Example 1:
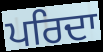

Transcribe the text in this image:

ਪਰਿਦਾ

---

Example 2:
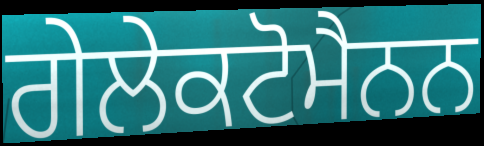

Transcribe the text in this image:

ਗੇਲੇਕਟੋਮੈਨਨ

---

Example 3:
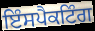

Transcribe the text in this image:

ਇੰਸਪੈਕਟਿੰਗ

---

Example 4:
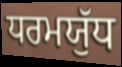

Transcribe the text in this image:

ਧਰਮਯੁੱਧ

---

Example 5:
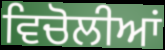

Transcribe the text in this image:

ਵਿਚੋਲੀਆਂ